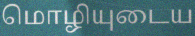
மொழியுடைய